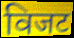
विजट